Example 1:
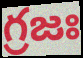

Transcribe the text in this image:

గ్రజః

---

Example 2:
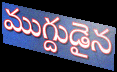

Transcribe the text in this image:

ముగ్దుడైన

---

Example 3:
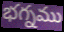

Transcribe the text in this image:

భగ్నము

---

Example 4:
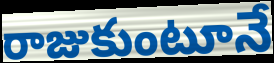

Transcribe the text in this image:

రాజుకుంటూనే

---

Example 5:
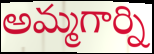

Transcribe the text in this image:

అమ్మగార్ని